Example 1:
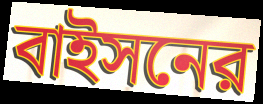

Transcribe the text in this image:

বাইসনের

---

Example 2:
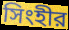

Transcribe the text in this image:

সিংহীর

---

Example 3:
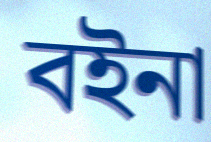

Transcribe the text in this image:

বইনা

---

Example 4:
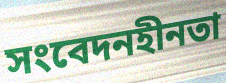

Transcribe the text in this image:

সংবেদনহীনতা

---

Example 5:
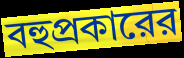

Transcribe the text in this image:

বহুপ্রকারের